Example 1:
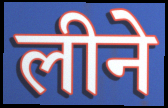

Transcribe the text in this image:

लीने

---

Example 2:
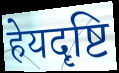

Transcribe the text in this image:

हेयदृष्टि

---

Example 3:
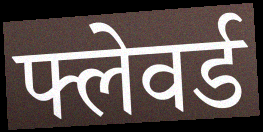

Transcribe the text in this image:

फ्लेवर्ड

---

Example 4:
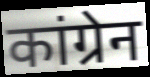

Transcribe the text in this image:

कांग्रेन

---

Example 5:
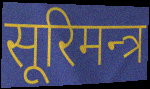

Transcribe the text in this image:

सूरिमन्त्र